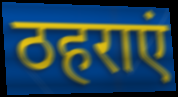
ठहराएं